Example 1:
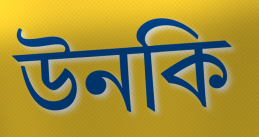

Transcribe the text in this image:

উনকি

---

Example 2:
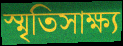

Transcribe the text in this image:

স্মৃতিসাক্ষ্য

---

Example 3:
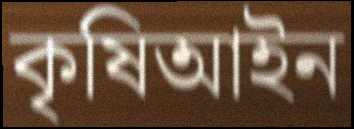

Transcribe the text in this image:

কৃষিআইন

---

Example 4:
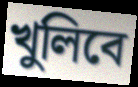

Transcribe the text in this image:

খুলিবে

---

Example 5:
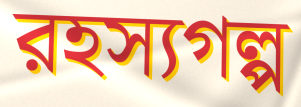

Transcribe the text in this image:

রহস্যগল্প